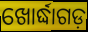
ଖୋର୍ଦ୍ଧାଗଡ଼